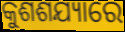
କୁଶଶଯ୍ୟାରେ